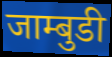
जाम्बुडी